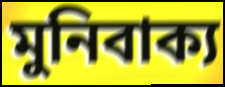
মুনিবাক্য